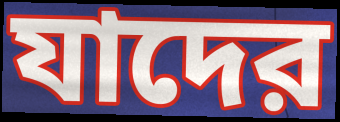
যাদের